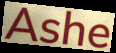
Ashe